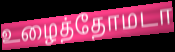
உழைத்தோமடா